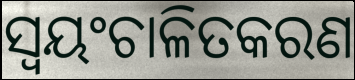
ସ୍ୱୟଂଚାଳିତକରଣ